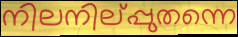
നിലനില്പ്പുതന്നെ